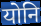
योनि